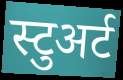
स्टुअर्ट